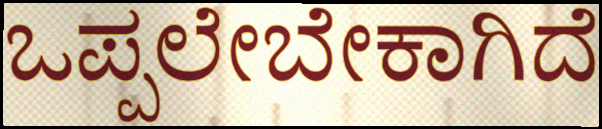
ಒಪ್ಪಲೇಬೇಕಾಗಿದೆ